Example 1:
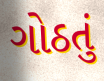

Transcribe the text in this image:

ગોઠતું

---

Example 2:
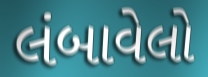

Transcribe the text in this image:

લંબાવેલો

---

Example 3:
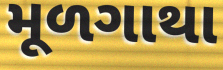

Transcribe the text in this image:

મૂળગાથા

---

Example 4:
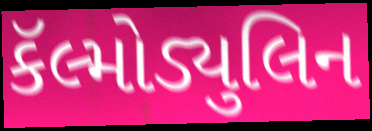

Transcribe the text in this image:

કૅલ્મોડ્યુલિન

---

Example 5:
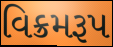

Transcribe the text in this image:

વિક્રમરૂપ